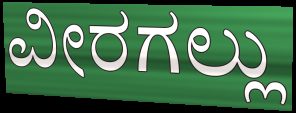
ವೀರಗಲ್ಲು